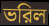
ভরিল